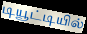
டியூட்டியில்